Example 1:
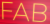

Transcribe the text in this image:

FAB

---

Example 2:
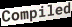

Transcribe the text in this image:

Compiled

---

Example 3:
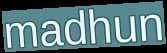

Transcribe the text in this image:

madhun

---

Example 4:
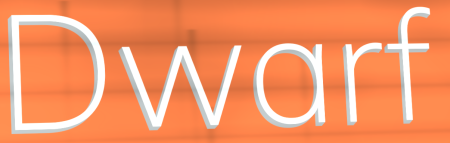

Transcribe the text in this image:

Dwarf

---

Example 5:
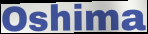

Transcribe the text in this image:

Oshima